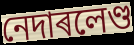
নেদাৰলেণ্ড